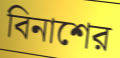
বিনাশের